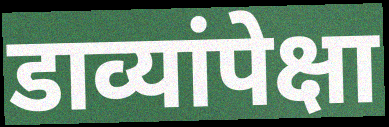
डाव्यांपेक्षा